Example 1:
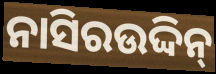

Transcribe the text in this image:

ନାସିରଉଦ୍ଦିନ୍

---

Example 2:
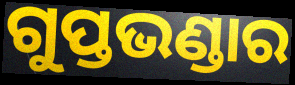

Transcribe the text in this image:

ଗୁପ୍ତଭଣ୍ଡାର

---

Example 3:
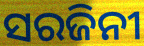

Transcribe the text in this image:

ସରଜିନୀ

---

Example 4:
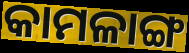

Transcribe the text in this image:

କାମଳାଙ୍ଗ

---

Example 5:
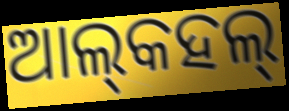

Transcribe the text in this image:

ଆଲ୍‌କହଲ୍